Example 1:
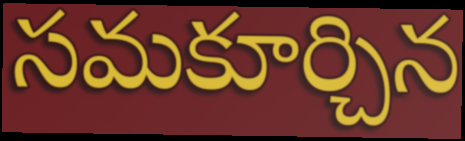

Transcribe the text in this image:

సమకూర్చిన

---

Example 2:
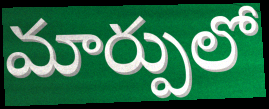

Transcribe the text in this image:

మార్పులో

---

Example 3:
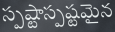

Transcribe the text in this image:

స్పష్టాస్పష్టమైన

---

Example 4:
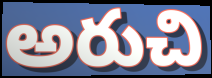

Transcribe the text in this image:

అరుచి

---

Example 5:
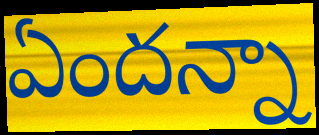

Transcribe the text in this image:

ఏందన్నా